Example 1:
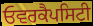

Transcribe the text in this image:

ਓਵਰਕੈਪਸਿਟੀ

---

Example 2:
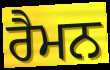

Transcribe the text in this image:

ਰੈਮਨ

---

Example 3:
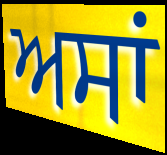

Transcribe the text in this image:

ਅਸਾਂ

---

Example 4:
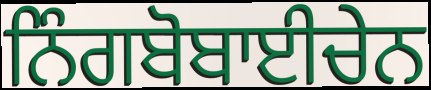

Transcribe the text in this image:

ਨਿੰਗਬੋਬਾਈਚੇਨ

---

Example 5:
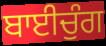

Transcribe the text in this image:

ਬਾਈਚੁੰਗ